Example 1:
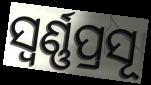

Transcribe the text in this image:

ସ୍ବର୍ଣ୍ଣପ୍ରସୂ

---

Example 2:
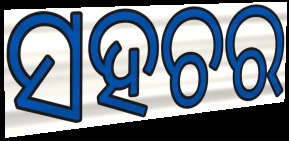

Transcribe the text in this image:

ସହଚର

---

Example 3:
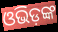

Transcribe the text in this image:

ଓଭିଡ଼ଙ୍କ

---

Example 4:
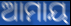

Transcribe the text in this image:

ଆମାୟ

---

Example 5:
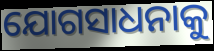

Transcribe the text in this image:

ଯୋଗସାଧନାକୁ